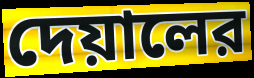
দেয়ালের